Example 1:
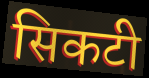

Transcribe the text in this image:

सिकटी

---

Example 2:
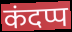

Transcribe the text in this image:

कंदप्प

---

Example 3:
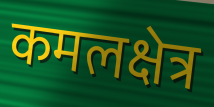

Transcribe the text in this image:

कमलक्षेत्र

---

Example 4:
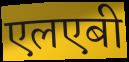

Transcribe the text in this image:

एलएबी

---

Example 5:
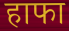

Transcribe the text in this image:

हाफा